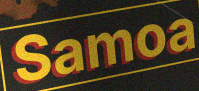
Samoa